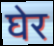
घेर